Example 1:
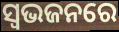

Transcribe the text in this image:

ସ୍ଵଭଜନରେ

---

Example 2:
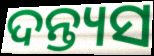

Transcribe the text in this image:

ଦନ୍ତ୍ୟସ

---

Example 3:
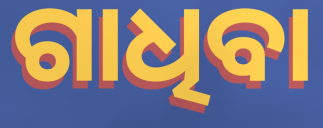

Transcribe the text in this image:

ଗାଧିବା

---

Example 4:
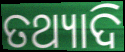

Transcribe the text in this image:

ତଥ୍ୟାଦି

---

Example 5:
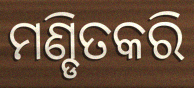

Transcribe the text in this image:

ମଣ୍ଡିତକରି